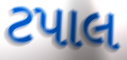
ટપાલ